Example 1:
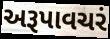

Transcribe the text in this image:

અરૂપાવચરં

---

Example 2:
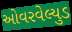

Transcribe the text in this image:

ઓવરવેલ્યુડ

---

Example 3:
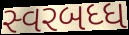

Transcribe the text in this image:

સ્વરબધ્ધ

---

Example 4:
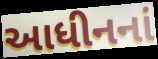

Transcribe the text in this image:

આધીનનાં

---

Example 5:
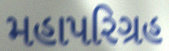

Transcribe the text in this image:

મહાપરિગ્રહ